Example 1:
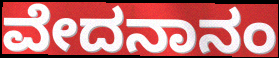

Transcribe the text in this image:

ವೇದನಾನಂ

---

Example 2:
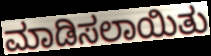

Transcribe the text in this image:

ಮಾಡಿಸಲಾಯಿತು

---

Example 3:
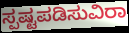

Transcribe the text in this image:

ಸ್ಪಷ್ಟಪಡಿಸುವಿರಾ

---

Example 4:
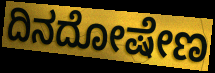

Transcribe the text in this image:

ದಿನದೋಷೇಣ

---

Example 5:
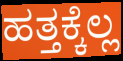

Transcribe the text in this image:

ಹತ್ತಕ್ಕೆಲ್ಲ